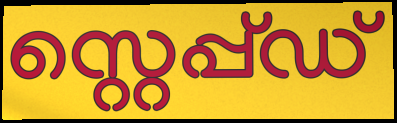
സ്റ്റെപ്പ്ഡ്